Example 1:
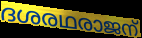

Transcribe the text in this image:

ദശരഥരാജന്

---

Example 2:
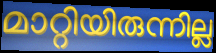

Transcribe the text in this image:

മാറ്റിയിരുന്നില്ല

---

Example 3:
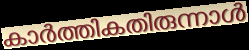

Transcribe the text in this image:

കാർത്തികതിരുന്നാൾ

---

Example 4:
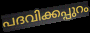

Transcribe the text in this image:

പദവിക്കപ്പുറം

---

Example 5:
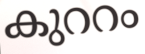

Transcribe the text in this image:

കുററം